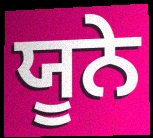
ਯੂਨੇ